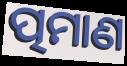
ତ୍ପମାଣ